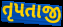
તૃપતાજી